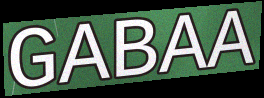
GABAA